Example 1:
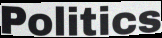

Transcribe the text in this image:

Politics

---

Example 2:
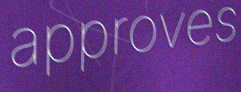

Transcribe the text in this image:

approves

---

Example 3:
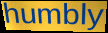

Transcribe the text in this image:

humbly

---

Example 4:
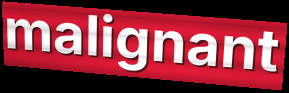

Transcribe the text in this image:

malignant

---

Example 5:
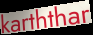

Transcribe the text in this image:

karththar